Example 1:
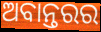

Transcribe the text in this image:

ଅବାନ୍ତରର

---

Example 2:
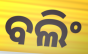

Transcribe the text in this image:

ବଲିଂ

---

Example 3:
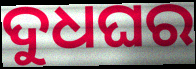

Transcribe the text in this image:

ଦୁଧଘର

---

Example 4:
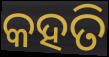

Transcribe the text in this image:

କହତି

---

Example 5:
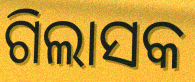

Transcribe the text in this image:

ଗିଲାସକ